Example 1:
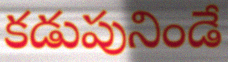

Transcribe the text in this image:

కడుపునిండే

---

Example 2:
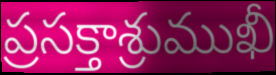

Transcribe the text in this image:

ప్రసక్తాశ్రుముఖీ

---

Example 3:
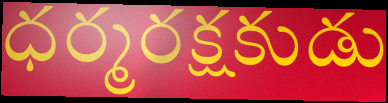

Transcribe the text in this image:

ధర్మరక్షకుడు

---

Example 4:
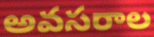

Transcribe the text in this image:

అవసరాల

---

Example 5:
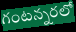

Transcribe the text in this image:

గంటన్నరలో